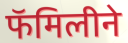
फॅमिलीने